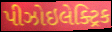
પીઝોઇલેક્ટ્રિક